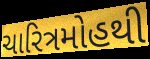
ચારિત્રમોહથી